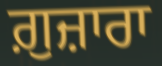
ਗ਼ੁਜ਼ਾਰਾ